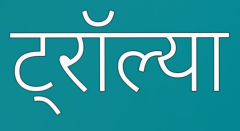
ट्रॉल्या